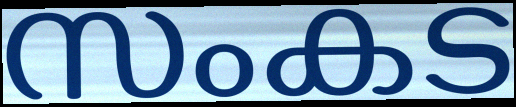
സംകട